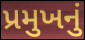
પ્રમુખનું